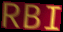
RBI